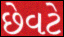
છેવટે